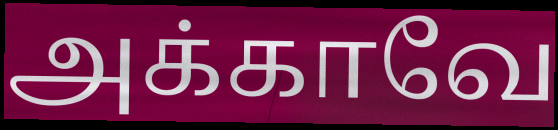
அக்காவே